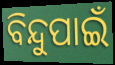
ବିନ୍ଦୁପାଇଁ